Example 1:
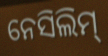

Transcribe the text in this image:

ନେସିଲିମ୍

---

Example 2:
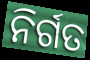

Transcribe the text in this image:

ନିର୍ଗତ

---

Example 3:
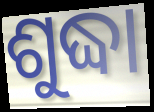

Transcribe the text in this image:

ଶୁଦ୍ଧା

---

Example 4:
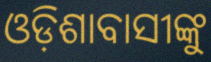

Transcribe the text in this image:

ଓଡ଼ିଶାବାସୀଙ୍କୁ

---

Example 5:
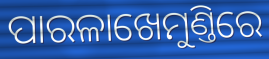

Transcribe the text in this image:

ପାରଳାଖେମୁଣ୍ତିରେ